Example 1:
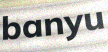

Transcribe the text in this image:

banyu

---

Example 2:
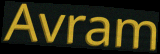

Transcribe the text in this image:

Avram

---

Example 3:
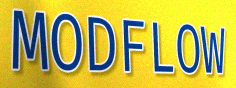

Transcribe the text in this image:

MODFLOW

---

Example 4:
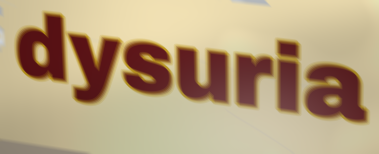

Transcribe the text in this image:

dysuria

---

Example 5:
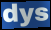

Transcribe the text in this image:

dys